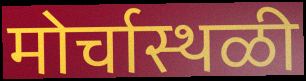
मोर्चास्थळी